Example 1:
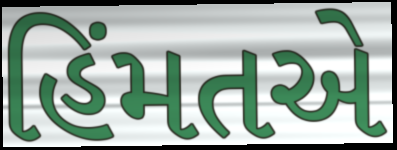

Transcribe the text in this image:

હિંમતએ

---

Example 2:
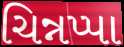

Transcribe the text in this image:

ચિન્નપ્પા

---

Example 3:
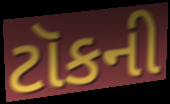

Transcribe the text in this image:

ટૉકની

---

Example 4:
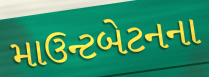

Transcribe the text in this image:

માઉન્ટબેટનના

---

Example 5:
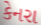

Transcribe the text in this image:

કેનરા